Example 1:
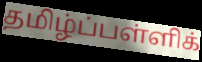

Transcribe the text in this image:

தமிழ்ப்பள்ளிக்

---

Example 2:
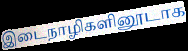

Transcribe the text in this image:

இடைநாழிகளினூடாக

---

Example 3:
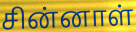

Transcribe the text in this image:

சின்னாள்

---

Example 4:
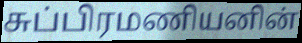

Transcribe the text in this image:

சுப்பிரமணியனின்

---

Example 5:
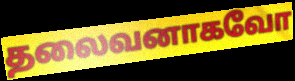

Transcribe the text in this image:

தலைவனாகவோ